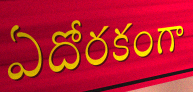
ఏదోరకంగా